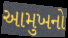
આમુખનો